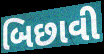
બિછાવી